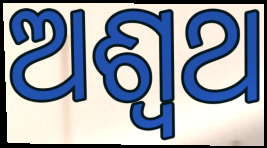
ଅଶ୍ବଥ